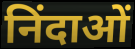
निंदाओं